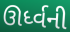
ઊર્ધ્વની